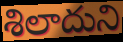
శిలాదుని